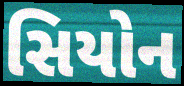
સિયોન